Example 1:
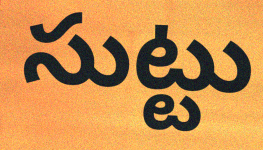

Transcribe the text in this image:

సుట్టు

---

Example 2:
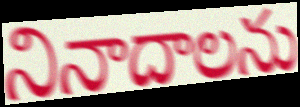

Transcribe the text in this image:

నినాదాలను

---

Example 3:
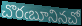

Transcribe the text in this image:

చొరఁబూనినచో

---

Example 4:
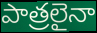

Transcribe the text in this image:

పాత్రలైనా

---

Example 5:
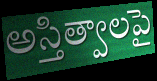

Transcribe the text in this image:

అస్తిత్వాలపై